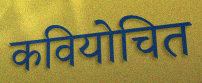
कवियोचित